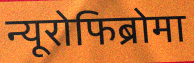
न्यूरोफिब्रोमा